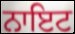
ਨਾਇਟ